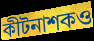
কীটনাশকও